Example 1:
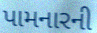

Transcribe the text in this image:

પામનારની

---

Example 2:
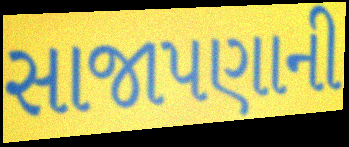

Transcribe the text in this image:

સાજાપણાની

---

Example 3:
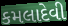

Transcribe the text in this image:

કમલાદેવી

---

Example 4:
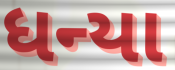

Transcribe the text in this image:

ધન્યા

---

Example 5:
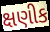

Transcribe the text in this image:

ક્ષણીક